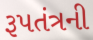
રૂપતંત્રની